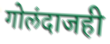
गोलंदाजही